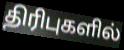
திரிபுகளில்